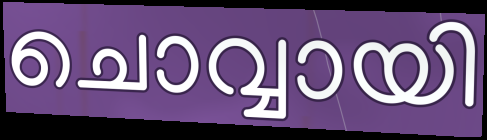
ചൊവ്വായി